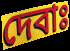
দেবাঃ